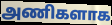
அணிகளாக